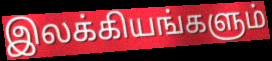
இலக்கியங்களும்